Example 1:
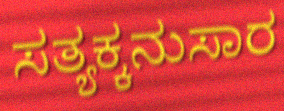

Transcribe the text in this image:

ಸತ್ಯಕ್ಕನುಸಾರ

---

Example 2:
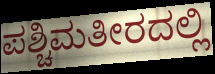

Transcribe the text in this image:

ಪಶ್ಚಿಮತೀರದಲ್ಲಿ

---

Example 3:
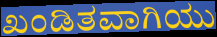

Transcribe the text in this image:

ಖಂಡಿತವಾಗಿಯು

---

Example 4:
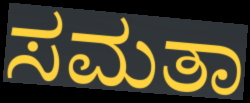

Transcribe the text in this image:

ಸಮತಾ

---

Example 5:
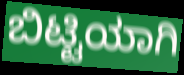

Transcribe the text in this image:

ಬಿಟ್ಟಿಯಾಗಿ